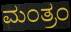
ಮಂತ್ರಂ